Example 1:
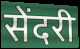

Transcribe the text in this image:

सेंदरी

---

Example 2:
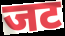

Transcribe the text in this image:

जट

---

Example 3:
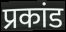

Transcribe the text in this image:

प्रकांड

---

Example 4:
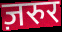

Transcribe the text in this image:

ज़रुर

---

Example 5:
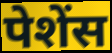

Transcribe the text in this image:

पेशेंस